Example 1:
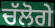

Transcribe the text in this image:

ਚੱਲੋਗੇ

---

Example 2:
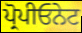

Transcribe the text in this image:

ਪ੍ਰੋਪੀਓਨੇਟ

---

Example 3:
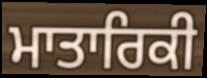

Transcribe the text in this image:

ਮਾਤਾਰਿਕੀ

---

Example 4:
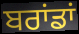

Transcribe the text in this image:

ਬਰਾਂਡਾਂ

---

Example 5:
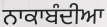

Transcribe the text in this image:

ਨਾਕਾਬੰਦੀਆ